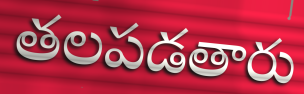
తలపడతారు